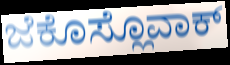
ಜೆಕೊಸ್ಲೊವಾಕ್